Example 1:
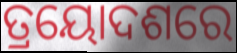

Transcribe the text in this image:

ତ୍ରୟୋଦଶରେ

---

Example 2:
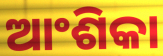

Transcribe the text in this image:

ଆଂଶିକା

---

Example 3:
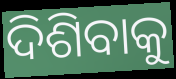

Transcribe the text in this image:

ଦିଶିବାକୁ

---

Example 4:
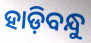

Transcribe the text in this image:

ହାଡ଼ିବନ୍ଧୁ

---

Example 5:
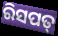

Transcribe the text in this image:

ରିସପତ୍